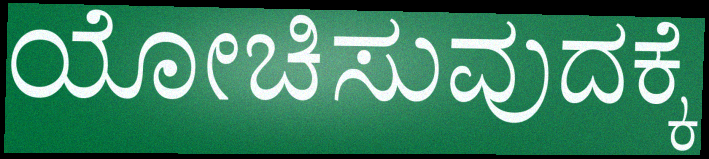
ಯೋಚಿಸುವುದಕ್ಕೆ